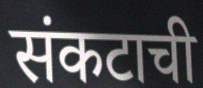
संकटाची